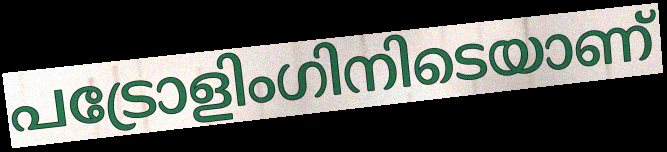
പട്രോളിംഗിനിടെയാണ്